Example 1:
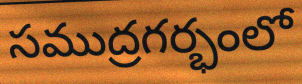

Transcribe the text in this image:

సముద్రగర్భంలో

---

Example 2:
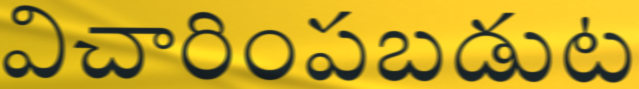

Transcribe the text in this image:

విచారింపబడుట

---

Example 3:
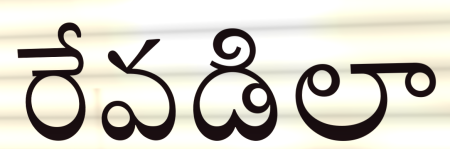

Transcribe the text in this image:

రేవడిలా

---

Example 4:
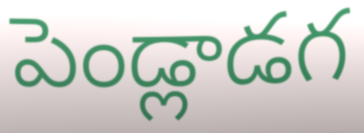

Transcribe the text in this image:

పెండ్లాడగ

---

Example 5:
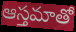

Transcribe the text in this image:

ఆస్తమాతో